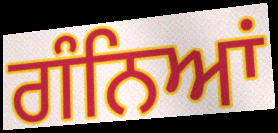
ਗੰਨਿਆਂ